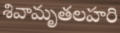
శివామృతలహరి